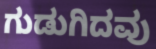
ಗುಡುಗಿದವು